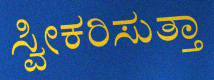
ಸ್ವೀಕರಿಸುತ್ತಾ